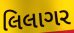
લિલાગર